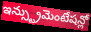
ఇన్స్ట్రుమెంటేషన్లో